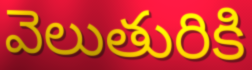
వెలుతురికి